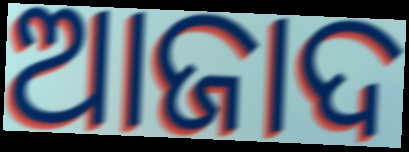
ଆଜାଦ